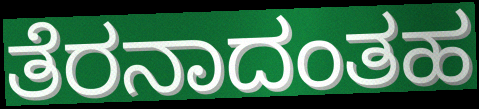
ತೆರನಾದಂತಹ